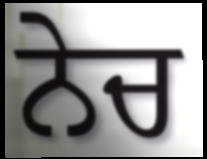
ਨੇਚ